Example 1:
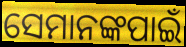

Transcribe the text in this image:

ସେମାନଙ୍କପାଇଁ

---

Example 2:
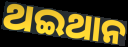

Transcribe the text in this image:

ଥଇଥାନ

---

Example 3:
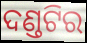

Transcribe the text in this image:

ଦଣ୍ଡଟିର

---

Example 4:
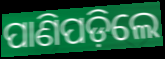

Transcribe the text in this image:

ପାଣିପଡ଼ିଲେ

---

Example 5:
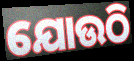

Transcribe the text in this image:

ଯୋଉଠି